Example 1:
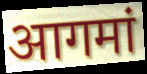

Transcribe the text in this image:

आगमां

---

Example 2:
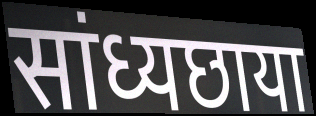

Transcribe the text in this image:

सांध्यछाया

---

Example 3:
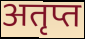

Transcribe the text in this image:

अतृप्त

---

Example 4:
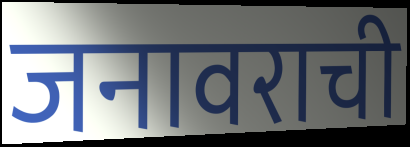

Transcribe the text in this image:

जनावराची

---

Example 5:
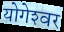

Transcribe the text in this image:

योगेश्वर